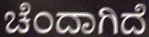
ಚೆಂದಾಗಿದೆ